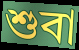
শুবা